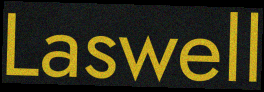
Laswell